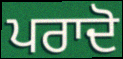
ਪਰਾਦੋ